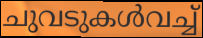
ചുവടുകൾവച്ച്